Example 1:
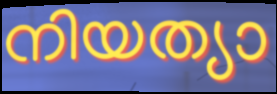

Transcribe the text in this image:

നിയത്യാ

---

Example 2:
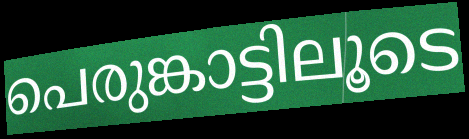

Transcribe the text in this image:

പെരുങ്കാട്ടിലൂടെ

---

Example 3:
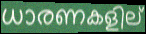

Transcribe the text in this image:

ധാരണകളില്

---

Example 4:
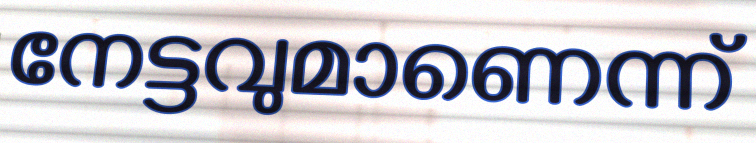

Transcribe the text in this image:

നേട്ടവുമാണെന്ന്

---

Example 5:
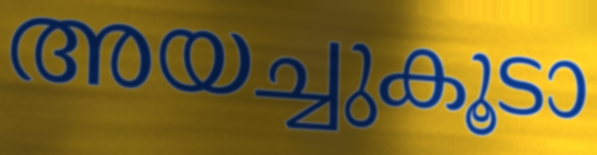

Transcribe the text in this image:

അയച്ചുകൂടാ